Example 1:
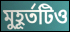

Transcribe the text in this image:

মুহূর্তটিও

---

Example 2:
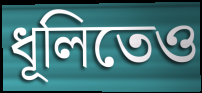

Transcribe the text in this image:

ধূলিতেও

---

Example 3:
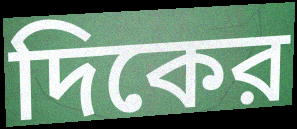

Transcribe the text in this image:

দিকের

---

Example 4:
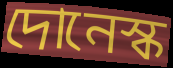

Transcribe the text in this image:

দোনেস্ক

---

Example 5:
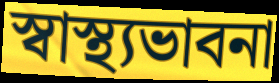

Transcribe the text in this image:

স্বাস্থ্যভাবনা